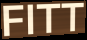
FITT